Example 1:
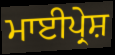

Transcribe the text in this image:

ਮਾਈਪ੍ਰੇਸ਼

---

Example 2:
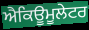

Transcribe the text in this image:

ਐਕਿਊਮੂਲੇਟਰ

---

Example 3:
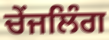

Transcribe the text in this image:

ਚੇਂਜਲਿੰਗ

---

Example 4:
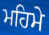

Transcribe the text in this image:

ਮਹਿਮੇ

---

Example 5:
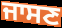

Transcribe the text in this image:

ਜਾਸਣ